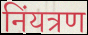
निंयत्रण